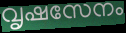
വൃഷസേനം